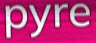
pyre